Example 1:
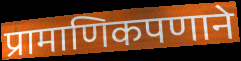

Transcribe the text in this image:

प्रामाणिकपणाने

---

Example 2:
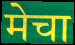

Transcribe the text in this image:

मेचा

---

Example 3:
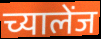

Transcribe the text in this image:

च्यालेंज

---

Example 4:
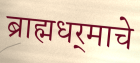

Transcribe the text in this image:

ब्राह्मधर्माचे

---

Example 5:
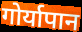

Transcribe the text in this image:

गोर्यापान